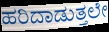
ಹರಿದಾಡುತ್ತಲೇ